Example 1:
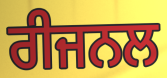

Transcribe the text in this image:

ਰੀਜਨਲ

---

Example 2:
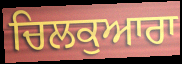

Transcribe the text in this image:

ਚਿਲਕੁਆਰਾ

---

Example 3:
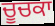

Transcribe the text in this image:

ਚੂਚਕਾ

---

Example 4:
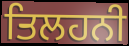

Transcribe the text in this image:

ਤਿਲਹਨੀ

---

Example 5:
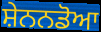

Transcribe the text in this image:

ਸ਼ੇਨਨਡੋਆ